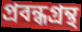
প্রবন্ধগ্রন্থ